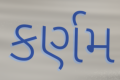
કર્ણમ